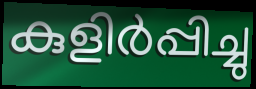
കുളിർപ്പിച്ചു